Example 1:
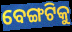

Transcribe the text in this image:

ବେଙ୍ଗଟିକୁ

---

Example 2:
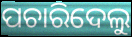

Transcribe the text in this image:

ପଚାରିଦେଲୁ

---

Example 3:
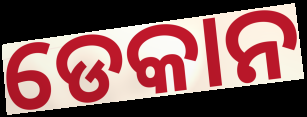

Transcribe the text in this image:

ଡେକାନ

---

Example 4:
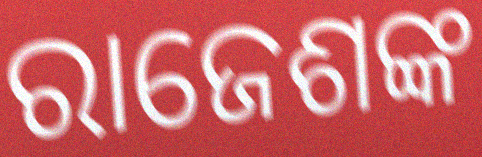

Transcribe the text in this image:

ରାଜେଶଙ୍କ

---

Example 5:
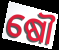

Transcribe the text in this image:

ଷୌ